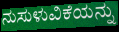
ನುಸುಳುವಿಕೆಯನ್ನು